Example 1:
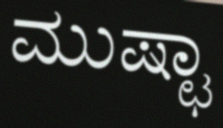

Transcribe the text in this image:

ಮುಷ್ಟಾ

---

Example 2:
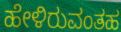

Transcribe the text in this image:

ಹೇಳಿರುವಂತಹ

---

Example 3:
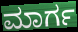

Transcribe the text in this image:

ಮಾರ್ಗ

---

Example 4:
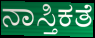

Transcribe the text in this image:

ನಾಸ್ತಿಕತೆ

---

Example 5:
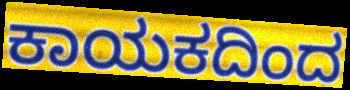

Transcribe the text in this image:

ಕಾಯಕದಿಂದ